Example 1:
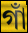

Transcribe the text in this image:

গাঁ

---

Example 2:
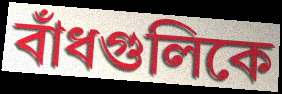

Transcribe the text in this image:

বাঁধগুলিকে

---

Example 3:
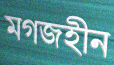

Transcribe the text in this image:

মগজহীন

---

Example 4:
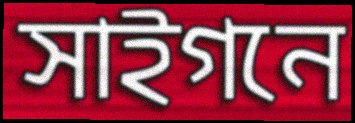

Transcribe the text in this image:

সাইগনে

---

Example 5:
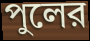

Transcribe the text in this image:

পুলের